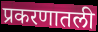
प्रकरणातली